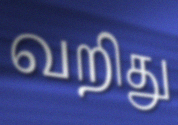
வறிது